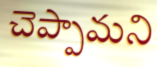
చెప్పామని